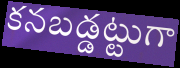
కనబడ్డట్టుగా